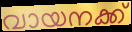
വായനക്ക്